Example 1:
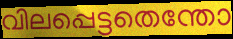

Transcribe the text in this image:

വിലപ്പെട്ടതെന്തോ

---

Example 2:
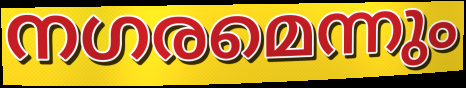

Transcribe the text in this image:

നഗരമെന്നും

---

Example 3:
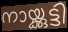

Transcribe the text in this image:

നായ്ക്കുട്ടി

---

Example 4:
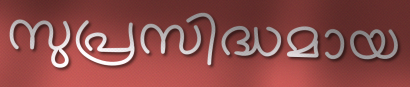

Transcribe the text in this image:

സുപ്രസിദ്ധമായ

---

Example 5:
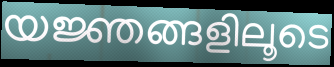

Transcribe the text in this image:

യജ്ഞങ്ങളിലൂടെ